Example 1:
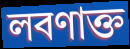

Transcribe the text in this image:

লবণাক্ত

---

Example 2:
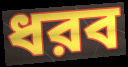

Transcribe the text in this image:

ধরব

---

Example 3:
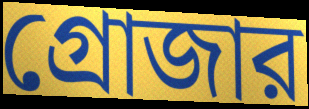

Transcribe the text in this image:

গ্রোজার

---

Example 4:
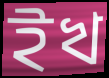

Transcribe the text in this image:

ইখ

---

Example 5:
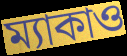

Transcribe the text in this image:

ম্যাকাও